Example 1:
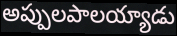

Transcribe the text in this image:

అప్పులపాలయ్యాడు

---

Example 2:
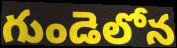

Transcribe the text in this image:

గుండెలోన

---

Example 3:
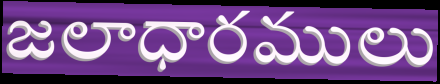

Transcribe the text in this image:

జలాధారములు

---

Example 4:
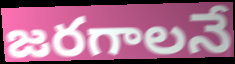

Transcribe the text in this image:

జరగాలనే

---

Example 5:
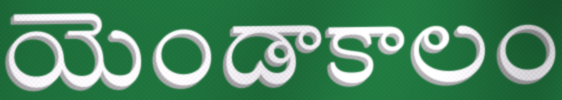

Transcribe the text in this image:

యెండాకాలం